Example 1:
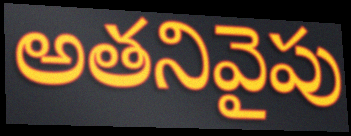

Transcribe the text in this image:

అతనివైపు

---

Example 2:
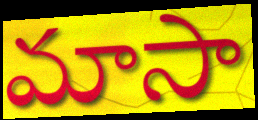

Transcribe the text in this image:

మాసా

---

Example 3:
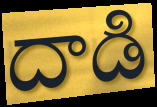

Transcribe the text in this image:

దాడి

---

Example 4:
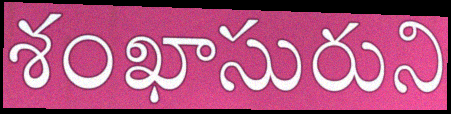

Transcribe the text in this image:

శంఖాసురుని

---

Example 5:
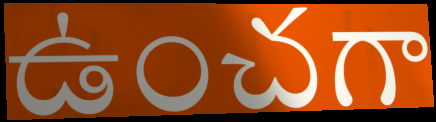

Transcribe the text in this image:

ఉంచగా